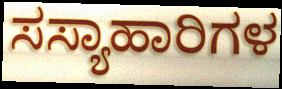
ಸಸ್ಯಾಹಾರಿಗಳ